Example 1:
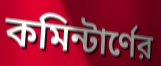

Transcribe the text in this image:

কমিন্টার্ণের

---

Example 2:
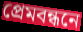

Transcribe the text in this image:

প্রেমবন্ধনে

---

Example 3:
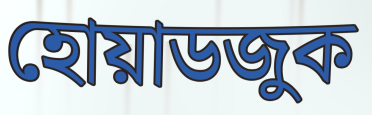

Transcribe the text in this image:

হোয়াডজুক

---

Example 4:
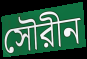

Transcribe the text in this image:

সৌরীন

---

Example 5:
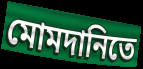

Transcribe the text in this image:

মোমদানিতে